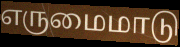
எருமைமாடு